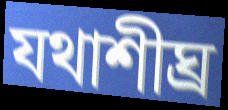
যথাশীঘ্র